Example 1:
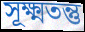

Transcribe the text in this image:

সূক্ষ্মতন্তু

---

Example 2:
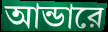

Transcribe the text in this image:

আন্ডারে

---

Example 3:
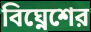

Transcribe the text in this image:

বিঘ্নেশের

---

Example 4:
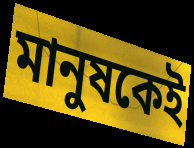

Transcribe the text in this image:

মানুষকেই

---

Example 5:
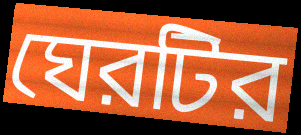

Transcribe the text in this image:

ঘেরটির